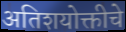
अतिशयोक्तीचे